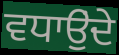
ਵਧਾਉੁਂਦੇ